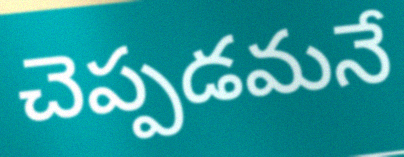
చెప్పడమనే